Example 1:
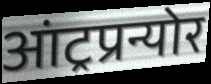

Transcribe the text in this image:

आंट्रप्रन्योर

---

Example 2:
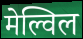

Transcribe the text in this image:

मेल्विल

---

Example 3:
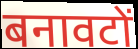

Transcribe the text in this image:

बनावटों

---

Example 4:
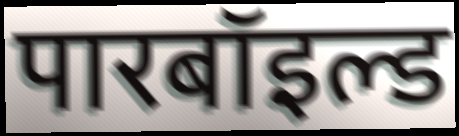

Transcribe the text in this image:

पारबॉइल्ड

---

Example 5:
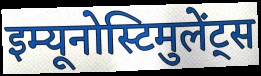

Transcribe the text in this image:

इम्यूनोस्टिमुलेंट्स